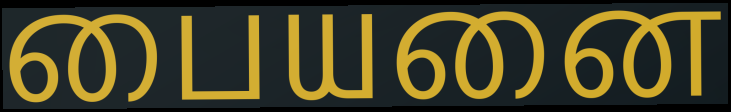
பையனை